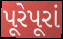
પૂરેપૂરાં